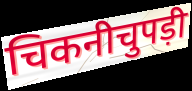
चिकनीचुपड़ी